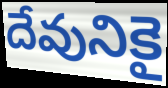
దేవునికై